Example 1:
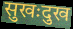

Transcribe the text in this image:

सुखःदुख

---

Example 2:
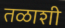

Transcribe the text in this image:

तळाशी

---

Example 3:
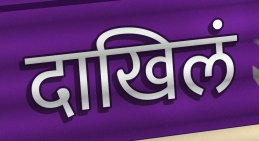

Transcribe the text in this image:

दाखिलं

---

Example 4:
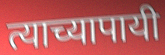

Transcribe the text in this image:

त्याच्यापायी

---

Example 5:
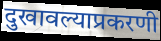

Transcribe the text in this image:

दुखावल्याप्रकरणी